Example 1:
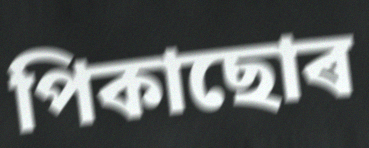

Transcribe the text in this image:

পিকাছোৰ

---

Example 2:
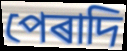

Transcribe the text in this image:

পেৰাদি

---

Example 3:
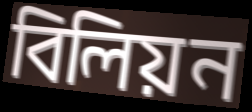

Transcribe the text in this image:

বিলিয়ন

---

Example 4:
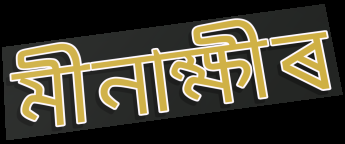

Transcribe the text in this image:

মীনাক্ষীৰ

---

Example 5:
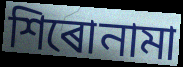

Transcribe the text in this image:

শিৰোনামা